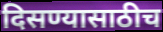
दिसण्यासाठीच